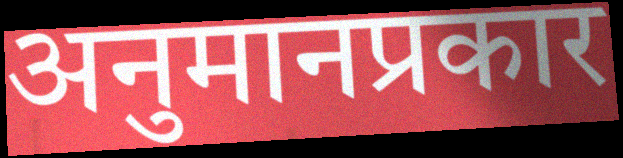
अनुमानप्रकार